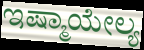
ಇಷ್ಮಾಯೇಲ್ಯ